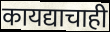
कायद्याचाही